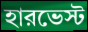
হারভেস্ট